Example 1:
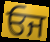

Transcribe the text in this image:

ਓਜ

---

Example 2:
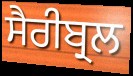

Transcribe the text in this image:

ਸੈਰੀਬ੍ਰਲ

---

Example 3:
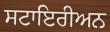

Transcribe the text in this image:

ਸਟਾਇਰੀਅਨ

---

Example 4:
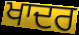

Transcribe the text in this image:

ਖਾਦਰ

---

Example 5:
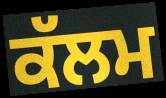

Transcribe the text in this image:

ਕੱਲਮ